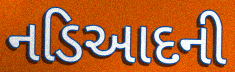
નડિઆદની